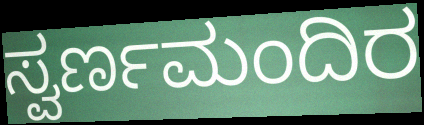
ಸ್ವರ್ಣಮಂದಿರ